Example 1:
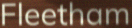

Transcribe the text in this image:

Fleetham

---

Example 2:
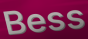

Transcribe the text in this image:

Bess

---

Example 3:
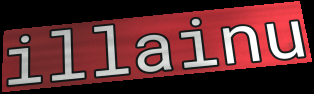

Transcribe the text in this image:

illainu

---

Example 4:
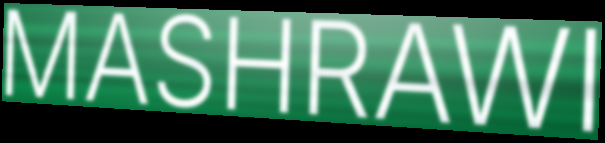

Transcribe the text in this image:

MASHRAWI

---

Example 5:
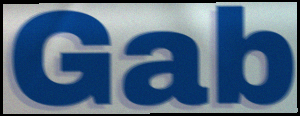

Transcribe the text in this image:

Gab